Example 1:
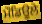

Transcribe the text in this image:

ਮੌਡਿਊਲੇ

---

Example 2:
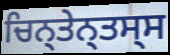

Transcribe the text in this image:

ਚਿਨ੍ਤੇਨ੍ਤਸ੍ਸ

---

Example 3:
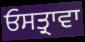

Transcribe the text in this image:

ਓਸਤ੍ਰਾਵਾ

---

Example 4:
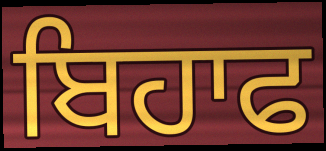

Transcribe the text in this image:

ਬਿਹਾਫ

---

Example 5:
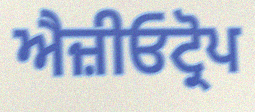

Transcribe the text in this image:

ਐਜ਼ੀਓਟ੍ਰੋਪ